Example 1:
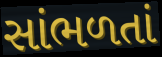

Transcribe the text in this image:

સાંભળતાં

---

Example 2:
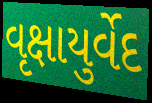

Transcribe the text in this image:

વૃક્ષાયુર્વેદ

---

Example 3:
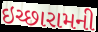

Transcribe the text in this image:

ઇચ્છારામની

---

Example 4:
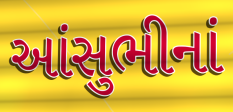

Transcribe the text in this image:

આંસુભીનાં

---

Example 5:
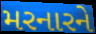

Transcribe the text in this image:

મરનારને